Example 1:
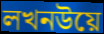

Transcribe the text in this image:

লখনউয়ে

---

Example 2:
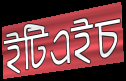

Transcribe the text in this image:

ইটিএইচ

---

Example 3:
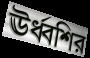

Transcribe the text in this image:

ঊর্ধ্বশির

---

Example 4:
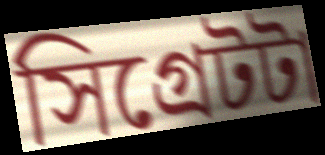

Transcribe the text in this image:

সিগ্রেটটা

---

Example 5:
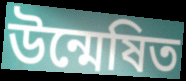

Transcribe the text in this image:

উন্মেষিত